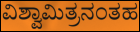
ವಿಶ್ವಾಮಿತ್ರನಂತಹ